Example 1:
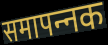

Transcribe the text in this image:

समापन्नक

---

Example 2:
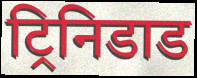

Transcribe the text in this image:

ट्रिनिडाड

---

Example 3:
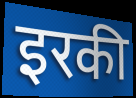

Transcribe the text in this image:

इरकी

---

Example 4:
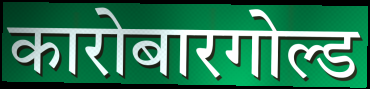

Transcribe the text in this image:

कारोबारगोल्ड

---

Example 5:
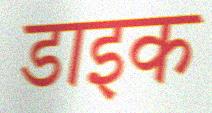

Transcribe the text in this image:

डाइक